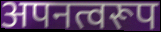
अपनत्वरूप